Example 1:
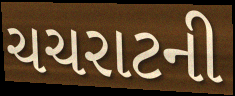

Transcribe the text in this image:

ચચરાટની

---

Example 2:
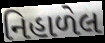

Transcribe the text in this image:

નિહાળેલ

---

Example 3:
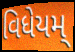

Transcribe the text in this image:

વિધેયમ્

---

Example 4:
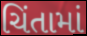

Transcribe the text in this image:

ચિંતામાં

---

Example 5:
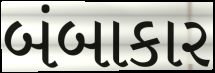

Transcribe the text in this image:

બંબાકાર